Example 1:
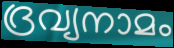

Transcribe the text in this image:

ദ്രവ്യനാമം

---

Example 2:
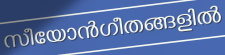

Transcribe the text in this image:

സീയോൻഗീതങ്ങളിൽ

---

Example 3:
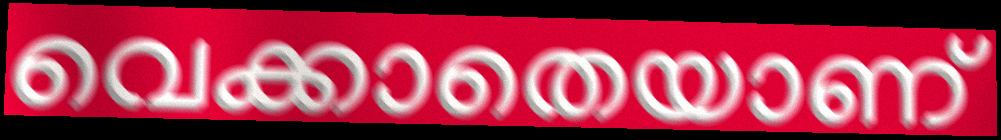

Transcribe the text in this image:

വെക്കാതെയാണ്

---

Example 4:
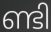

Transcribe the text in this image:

ണ്ടി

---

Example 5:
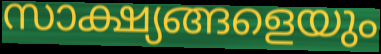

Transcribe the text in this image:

സാക്ഷ്യങ്ങളെയും